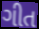
ગીત